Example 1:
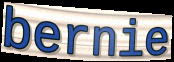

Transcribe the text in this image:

bernie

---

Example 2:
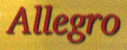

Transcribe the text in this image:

Allegro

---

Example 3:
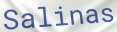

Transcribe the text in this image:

Salinas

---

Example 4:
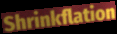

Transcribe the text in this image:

Shrinkflation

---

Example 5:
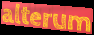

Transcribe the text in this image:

alterum